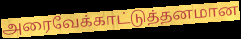
அரைவேக்காட்டுத்தனமான